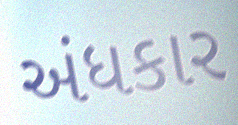
અંધકાર